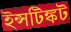
ইন্সটিঙ্কট